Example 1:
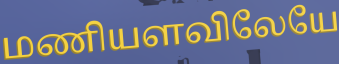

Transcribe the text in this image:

மணியளவிலேயே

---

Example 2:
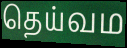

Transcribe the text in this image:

தெய்வம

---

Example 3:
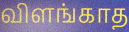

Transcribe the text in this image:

விளங்காத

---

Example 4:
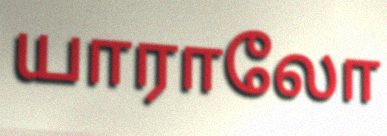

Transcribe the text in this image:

யாராலோ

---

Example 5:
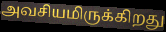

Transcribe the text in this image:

அவசியமிருக்கிறது